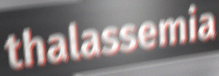
thalassemia